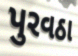
પુરવઠા